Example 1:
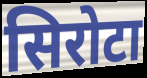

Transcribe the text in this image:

सिरोटा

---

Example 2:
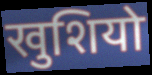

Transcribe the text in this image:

खुशियो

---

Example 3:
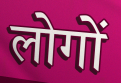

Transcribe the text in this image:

लोगों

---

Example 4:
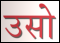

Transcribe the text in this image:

उसो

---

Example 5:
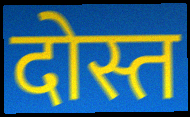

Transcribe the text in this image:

दोस्त